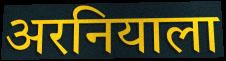
अरनियाला